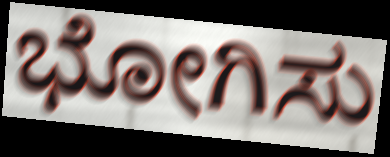
ಭೋಗಿಸು